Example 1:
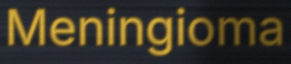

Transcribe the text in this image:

Meningioma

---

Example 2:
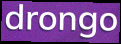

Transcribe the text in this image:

drongo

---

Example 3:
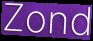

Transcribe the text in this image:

Zond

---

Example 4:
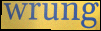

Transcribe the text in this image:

wrung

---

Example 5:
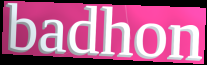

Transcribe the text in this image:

badhon